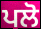
ਪਲੋ